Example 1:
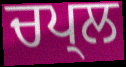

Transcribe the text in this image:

ਚਪ੍ਲ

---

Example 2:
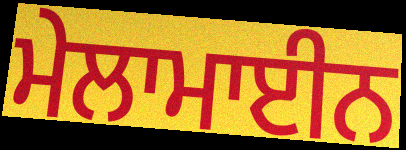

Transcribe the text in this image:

ਮੇਲਾਮਾਈਨ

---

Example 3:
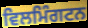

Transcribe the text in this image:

ਵਿਲਮਿੰਗਟਨ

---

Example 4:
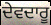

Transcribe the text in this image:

ਦੇਵਦਾਰੂ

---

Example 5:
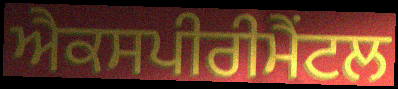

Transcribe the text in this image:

ਐਕਸਪੀਰੀਮੈਂਟਲ